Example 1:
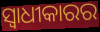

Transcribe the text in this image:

ସ୍ୱାଧୀକାରର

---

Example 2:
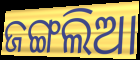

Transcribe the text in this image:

ଜଙ୍ଗଲିଆ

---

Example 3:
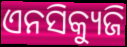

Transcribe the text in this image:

ଏନସିକ୍ୟୁଜି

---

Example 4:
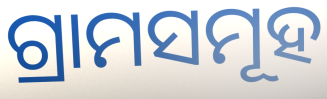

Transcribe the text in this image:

ଗ୍ରାମସମୂହ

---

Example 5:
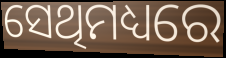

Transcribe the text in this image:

ସେଥିମଧ୍ୟରେ